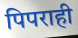
पिपराही